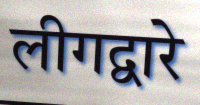
लीगद्वारे